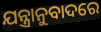
ଯନ୍ତ୍ରାନୁବାଦରେ